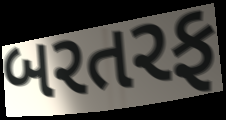
બરતરફ